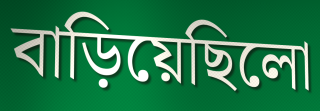
বাড়িয়েছিলো